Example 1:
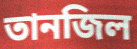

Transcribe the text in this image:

তানজিল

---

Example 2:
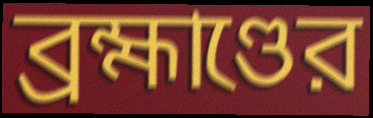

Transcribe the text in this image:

ব্রহ্মাণ্ডের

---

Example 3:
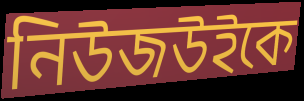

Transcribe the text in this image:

নিউজউইকে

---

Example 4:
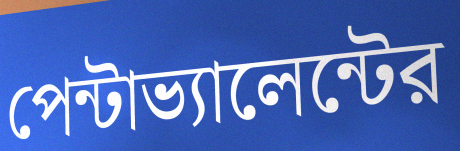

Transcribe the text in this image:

পেন্টাভ্যালেন্টের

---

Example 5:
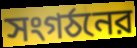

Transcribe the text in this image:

সংগঠনের